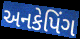
અનકેપિંગ